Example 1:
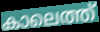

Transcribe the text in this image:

കാലെത്ത്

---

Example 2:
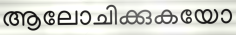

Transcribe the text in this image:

ആലോചിക്കുകയോ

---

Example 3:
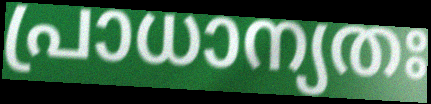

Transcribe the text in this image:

പ്രാധാന്യതഃ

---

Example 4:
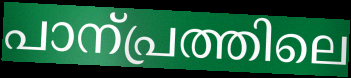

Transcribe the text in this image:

പാന്പ്രത്തിലെ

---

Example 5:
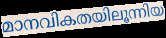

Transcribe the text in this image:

മാനവികതയിലൂന്നിയ